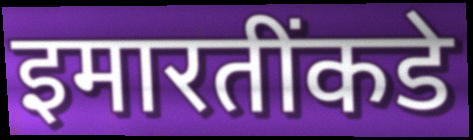
इमारतींकडे